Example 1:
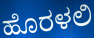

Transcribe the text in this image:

ಹೊರಳಲಿ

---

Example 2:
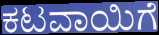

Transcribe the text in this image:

ಕಟವಾಯಿಗೆ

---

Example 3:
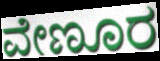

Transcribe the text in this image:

ವೇಣೂರ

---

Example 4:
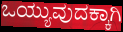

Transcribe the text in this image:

ಒಯ್ಯುವುದಕ್ಕಾಗಿ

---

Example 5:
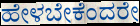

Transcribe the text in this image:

ಹೇಳಬೇಕೆಂದರೇ